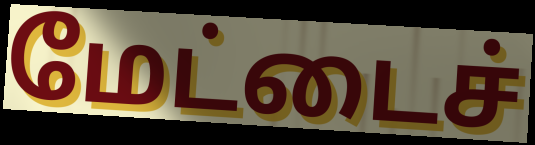
மேட்டைச்